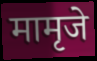
मामृजे